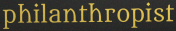
philanthropist